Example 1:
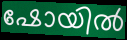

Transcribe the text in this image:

ഷോയിൽ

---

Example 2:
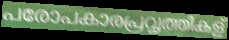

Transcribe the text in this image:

പരോപകാരപ്രവൃത്തികള്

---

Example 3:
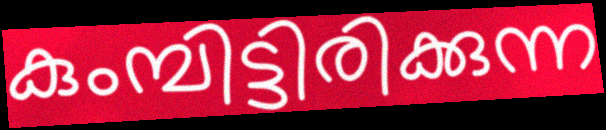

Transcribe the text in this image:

കുംമ്പിട്ടിരിക്കുന്ന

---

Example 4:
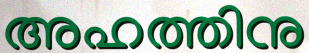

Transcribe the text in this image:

അഹത്തിനു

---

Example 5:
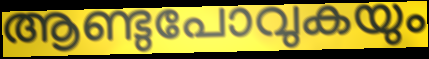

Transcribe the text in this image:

ആണ്ടുപോവുകയും